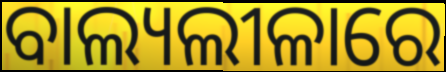
ବାଲ୍ୟଲୀଳାରେ